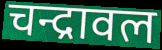
चन्द्रावल